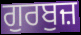
ਗੁਰਬੁਜ਼